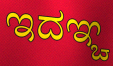
ಇದಞ್ಚ